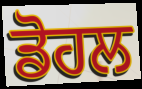
ਡੋਹਲ